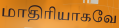
மாதிரியாகவே